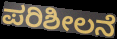
ಪರಿಶೀಲನೆ